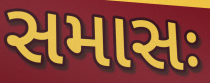
સમાસઃ